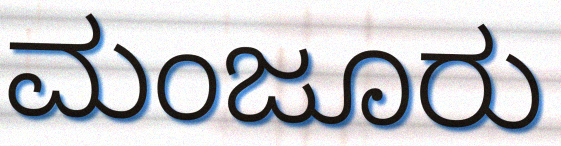
ಮಂಜೂರು